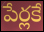
పేర్లకే